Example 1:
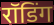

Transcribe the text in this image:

रॉडिंग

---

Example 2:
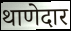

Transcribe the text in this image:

थाणेदार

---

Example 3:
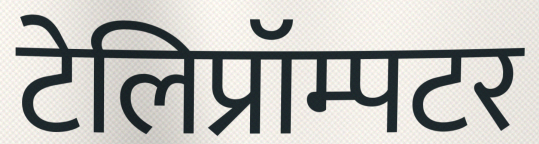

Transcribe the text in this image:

टेलिप्रॉम्पटर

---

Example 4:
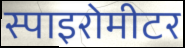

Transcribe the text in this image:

स्पाइरोमीटर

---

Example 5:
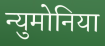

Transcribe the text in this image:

न्युमोनिया